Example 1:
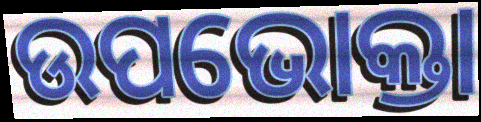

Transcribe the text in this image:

ଉପଭୋକ୍ତା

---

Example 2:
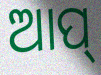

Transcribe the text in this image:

ଆପ୍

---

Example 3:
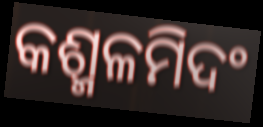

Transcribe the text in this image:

କଶ୍ମଳମିଦଂ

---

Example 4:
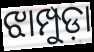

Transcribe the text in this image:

ଝାମ୍ପୁଡ଼ା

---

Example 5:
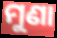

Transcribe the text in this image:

ମୁଣା